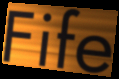
Fife